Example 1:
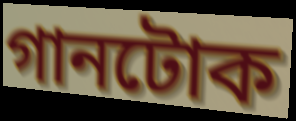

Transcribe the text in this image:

গানটোক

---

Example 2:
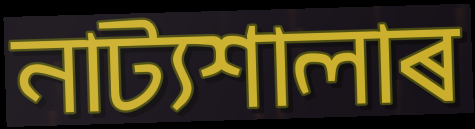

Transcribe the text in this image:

নাট্যশালাৰ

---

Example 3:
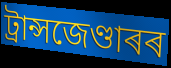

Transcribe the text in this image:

ট্ৰান্সজেণ্ডাৰৰ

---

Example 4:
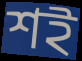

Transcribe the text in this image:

শই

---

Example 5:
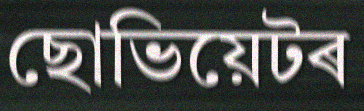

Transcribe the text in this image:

ছোভিয়েটৰ